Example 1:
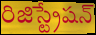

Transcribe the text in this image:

రిజిస్ట్రేషన్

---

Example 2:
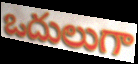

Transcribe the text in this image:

ఒదులుగా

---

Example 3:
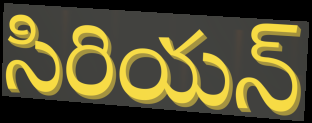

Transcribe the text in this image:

సిరియన్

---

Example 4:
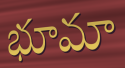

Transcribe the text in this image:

భూమా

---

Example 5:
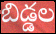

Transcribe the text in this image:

బిడ్డల